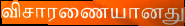
விசாரணையானது